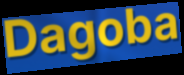
Dagoba